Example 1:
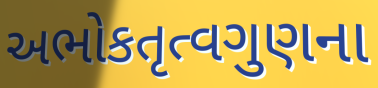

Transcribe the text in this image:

અભોકતૃત્વગુણના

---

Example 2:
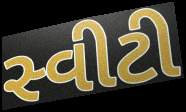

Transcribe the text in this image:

સ્વીટી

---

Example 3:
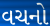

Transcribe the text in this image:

વચનો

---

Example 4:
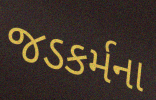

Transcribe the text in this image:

જડકર્મના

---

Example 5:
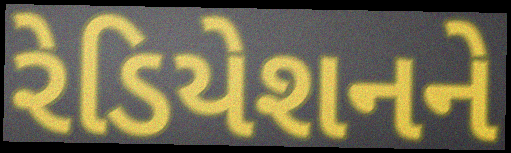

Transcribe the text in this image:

રેડિયેશનને